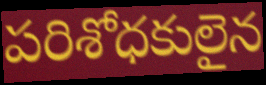
పరిశోధకులైన